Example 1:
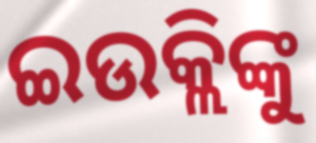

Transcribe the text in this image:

ଇଉକ୍ଲିଙ୍କୁ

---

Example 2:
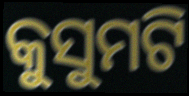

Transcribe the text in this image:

କୁସୁମଟି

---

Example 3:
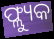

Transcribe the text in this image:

ଫ୍ଲ୍ୟୁକ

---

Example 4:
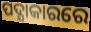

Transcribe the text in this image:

ପଦ୍ଯାକାରରେ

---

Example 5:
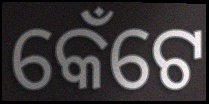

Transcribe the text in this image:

କେଁଟେ